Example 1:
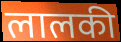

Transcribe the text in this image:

लालकी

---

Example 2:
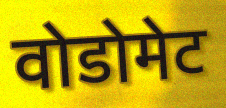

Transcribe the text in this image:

वोडोमेट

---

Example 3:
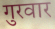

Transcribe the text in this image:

गुरवार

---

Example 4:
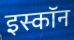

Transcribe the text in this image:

इस्कॉन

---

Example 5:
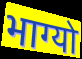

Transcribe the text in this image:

भाग्यो